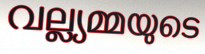
വല്ല്യമ്മയുടെ